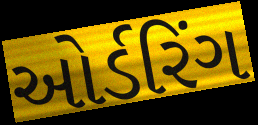
ઓર્ડરિંગ